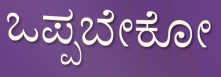
ಒಪ್ಪಬೇಕೋ